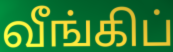
வீங்கிப்